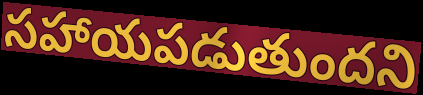
సహాయపడుతుందని